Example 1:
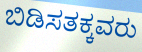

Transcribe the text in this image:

ಬಿಡಿಸತಕ್ಕವರು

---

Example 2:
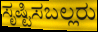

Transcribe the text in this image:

ಸೃಷ್ಟಿಸಬಲ್ಲರು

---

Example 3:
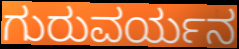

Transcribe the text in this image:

ಗುರುವರ್ಯನ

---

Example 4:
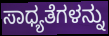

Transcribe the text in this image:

ಸಾಧ್ಯತೆಗಳನ್ನು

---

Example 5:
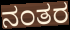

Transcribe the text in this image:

ನಂತರ